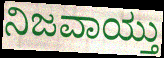
ನಿಜವಾಯ್ತು